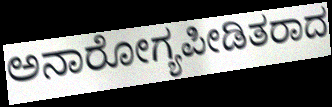
ಅನಾರೋಗ್ಯಪೀಡಿತರಾದ